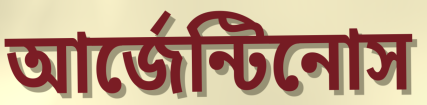
আর্জেন্টিনোস